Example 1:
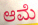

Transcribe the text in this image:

ಆಮೆ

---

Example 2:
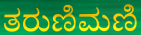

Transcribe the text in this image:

ತರುಣಿಮಣಿ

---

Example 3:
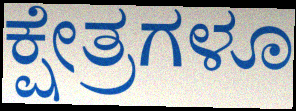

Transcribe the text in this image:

ಕ್ಷೇತ್ರಗಳೂ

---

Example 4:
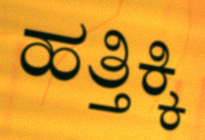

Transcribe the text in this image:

ಹತ್ತಿಕ್ಕಿ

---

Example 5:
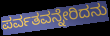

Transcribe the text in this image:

ಪರ್ವತವನ್ನೇರಿದನು